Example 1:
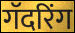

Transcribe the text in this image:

गॅदरिंग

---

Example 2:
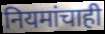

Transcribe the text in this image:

नियमांचाही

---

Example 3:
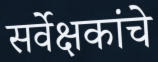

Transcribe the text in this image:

सर्वेक्षकांचे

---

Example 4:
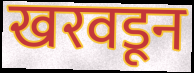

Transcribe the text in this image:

खरवडून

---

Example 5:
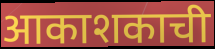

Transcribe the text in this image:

आकाशकाची